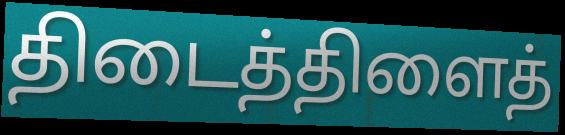
திடைத்திளைத்